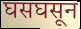
घसघसून